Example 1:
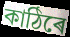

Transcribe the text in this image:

কাঠিৰে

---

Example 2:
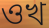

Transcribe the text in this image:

ওখ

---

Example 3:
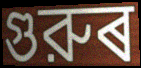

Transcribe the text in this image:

গুৰুৰ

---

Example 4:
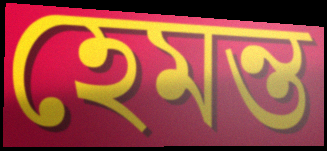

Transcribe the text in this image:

হেমন্ত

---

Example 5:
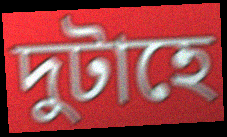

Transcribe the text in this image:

দুটাহে